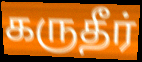
கருதீர்